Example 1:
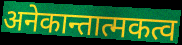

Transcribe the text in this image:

अनेकान्तात्मकत्व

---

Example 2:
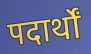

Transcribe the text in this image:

पदार्थों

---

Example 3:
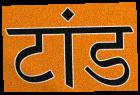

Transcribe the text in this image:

टांड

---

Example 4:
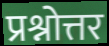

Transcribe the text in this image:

प्रश्नोत्तर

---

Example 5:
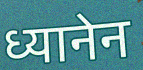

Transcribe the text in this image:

ध्यानेन